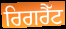
ਰਿਗਰੈੱਟ